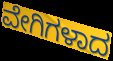
ವೇಗಿಗಳಾದ